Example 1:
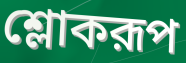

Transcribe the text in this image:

শ্লোকরূপ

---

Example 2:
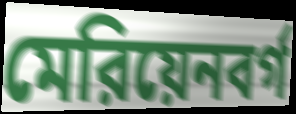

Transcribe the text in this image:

মেরিয়েনবর্গ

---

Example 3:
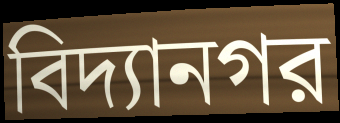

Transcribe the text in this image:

বিদ্যানগর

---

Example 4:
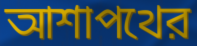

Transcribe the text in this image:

আশাপথের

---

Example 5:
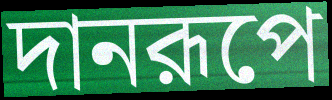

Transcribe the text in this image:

দানরূপে